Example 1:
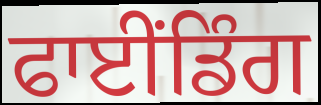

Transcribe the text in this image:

ਫਾਈਂਡਿੰਗ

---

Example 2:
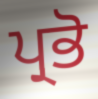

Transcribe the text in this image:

ਪ੍ਰਭੋ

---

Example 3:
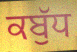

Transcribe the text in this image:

ਕਬੁੱਧ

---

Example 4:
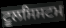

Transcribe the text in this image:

ਟੂਲਸਿਸਟਮ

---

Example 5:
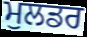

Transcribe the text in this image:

ਮੁਲਡਰ